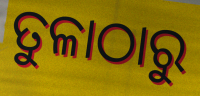
ତୁଳାଠାରୁ